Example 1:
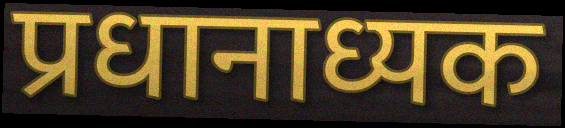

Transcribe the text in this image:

प्रधानाध्यक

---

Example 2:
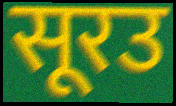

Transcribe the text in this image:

सूरउ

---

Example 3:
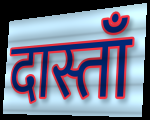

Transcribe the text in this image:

दास्ताँ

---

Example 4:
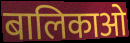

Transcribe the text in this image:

बालिकाओ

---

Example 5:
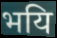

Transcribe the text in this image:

भयि